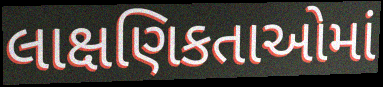
લાક્ષણિકતાઓમાં